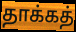
தாக்கத்